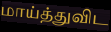
மாய்த்துவிட